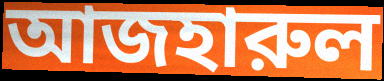
আজহারুল